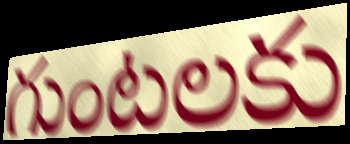
గుంటలకు